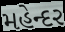
મહેન્દર